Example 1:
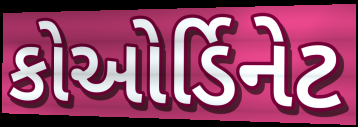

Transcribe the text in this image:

કોઓર્ડિનેટ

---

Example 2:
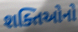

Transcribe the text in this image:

શક્તિઓનો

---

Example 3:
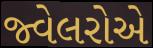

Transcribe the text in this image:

જ્વેલરોએ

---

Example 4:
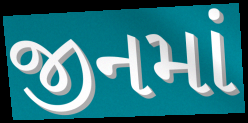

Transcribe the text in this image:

જીનમાં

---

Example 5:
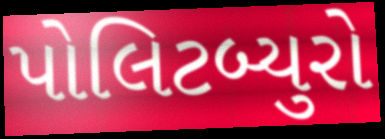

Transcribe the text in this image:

પોલિટબ્યુરો